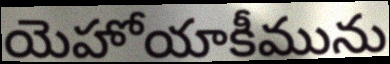
యెహోయాకీమును